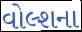
વોલ્શના